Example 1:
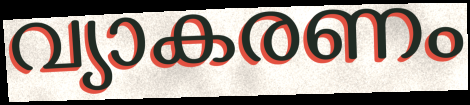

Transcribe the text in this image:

വ്യാകരണം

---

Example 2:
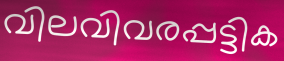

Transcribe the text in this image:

വിലവിവരപ്പട്ടിക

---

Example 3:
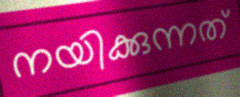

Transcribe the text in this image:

നയിക്കുന്നത്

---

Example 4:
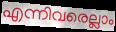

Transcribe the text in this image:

എന്നിവരെല്ലാം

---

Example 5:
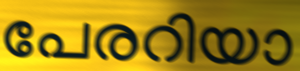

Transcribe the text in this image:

പേരറിയാ